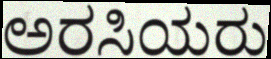
ಅರಸಿಯರು